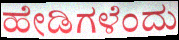
ಹೇಡಿಗಳೆಂದು